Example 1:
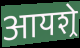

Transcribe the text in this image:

आयश्रे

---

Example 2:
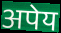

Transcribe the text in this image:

अपेय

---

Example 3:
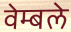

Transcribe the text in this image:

वेम्बले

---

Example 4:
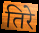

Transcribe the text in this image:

तिरे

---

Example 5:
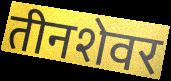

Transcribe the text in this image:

तीनशेवर